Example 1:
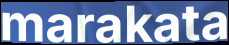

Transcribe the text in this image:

marakata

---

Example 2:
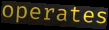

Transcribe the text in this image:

operates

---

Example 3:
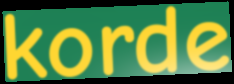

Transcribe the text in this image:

korde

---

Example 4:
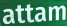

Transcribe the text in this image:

attam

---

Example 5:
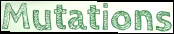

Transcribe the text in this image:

Mutations